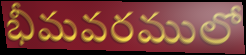
భీమవరములో